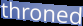
throned